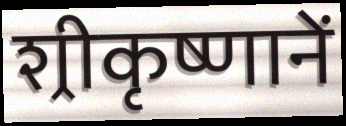
श्रीकृष्णानें